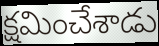
క్షమించేశాడు